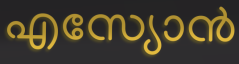
എസ്യോൻ